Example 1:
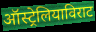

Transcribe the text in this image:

ऑस्ट्रेलियाविराट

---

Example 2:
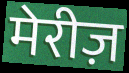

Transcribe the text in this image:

मेरीज़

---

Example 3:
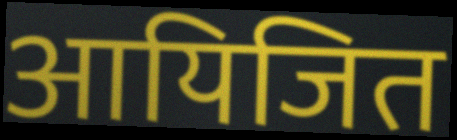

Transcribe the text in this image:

आयिजित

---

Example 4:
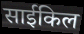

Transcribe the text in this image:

साईकिल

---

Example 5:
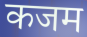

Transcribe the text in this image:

कजम